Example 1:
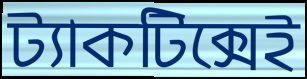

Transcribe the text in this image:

ট্যাকটিক্সেই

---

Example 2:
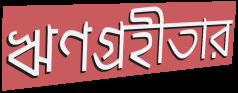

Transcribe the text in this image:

ঋণগ্রহীতার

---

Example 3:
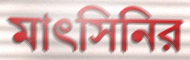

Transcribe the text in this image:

মাৎসিনির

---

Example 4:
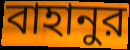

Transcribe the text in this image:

বাহানুর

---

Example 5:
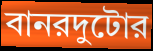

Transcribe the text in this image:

বানরদুটোর